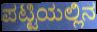
ಪಟ್ಟಿಯಲ್ಲಿನ